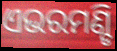
ଏଭରମଣ୍ଡି